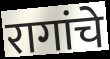
रागांचे